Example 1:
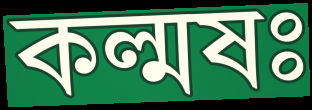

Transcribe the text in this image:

কল্মষঃ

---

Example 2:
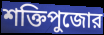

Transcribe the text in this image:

শক্তিপুজোর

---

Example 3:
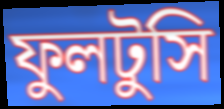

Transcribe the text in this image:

ফুলটুসি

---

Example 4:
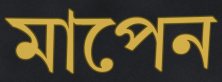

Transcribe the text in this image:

মাপেন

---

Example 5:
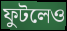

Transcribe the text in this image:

ফুটলেও